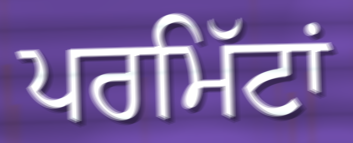
ਪਰਮਿੱਟਾਂ